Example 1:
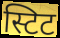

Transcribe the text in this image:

स्टिट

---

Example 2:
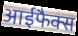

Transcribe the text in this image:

आईफैक्स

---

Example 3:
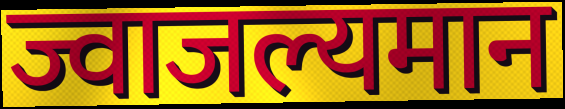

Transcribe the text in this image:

ज्वाजल्यमान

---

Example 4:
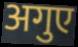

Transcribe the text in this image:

अगुए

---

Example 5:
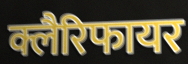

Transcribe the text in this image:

क्लैरिफायर